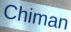
Chiman